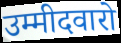
उम्मीदवारो